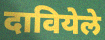
दावियेले